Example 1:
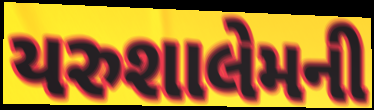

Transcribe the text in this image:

યરુશાલેમની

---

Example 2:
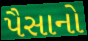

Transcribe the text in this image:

પૈસાનો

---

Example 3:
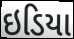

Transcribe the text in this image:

ઇડિયા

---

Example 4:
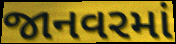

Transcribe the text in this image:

જાનવરમાં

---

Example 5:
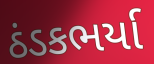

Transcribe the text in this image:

ઠંડકભર્યા